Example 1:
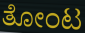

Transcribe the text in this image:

ತೋಂಟ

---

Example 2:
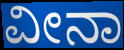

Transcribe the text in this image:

ವೀನಾ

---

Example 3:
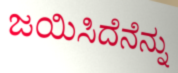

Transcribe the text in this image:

ಜಯಿಸಿದೆನೆನ್ನು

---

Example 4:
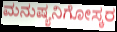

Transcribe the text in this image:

ಮನುಷ್ಯನಿಗೋಸ್ಕರ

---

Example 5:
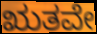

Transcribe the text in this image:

ಋತವೇ